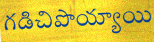
గడిచిపొయ్యాయి